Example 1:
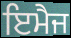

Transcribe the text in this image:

ਇਮੈਜ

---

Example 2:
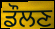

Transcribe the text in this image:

ਡੌਲਣ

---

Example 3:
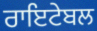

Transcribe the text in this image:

ਰਾਇਟੇਬਲ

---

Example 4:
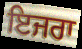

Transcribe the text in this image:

ਇਜਰਾ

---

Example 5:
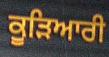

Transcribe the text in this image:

ਕੂੜਿਆਰੀ